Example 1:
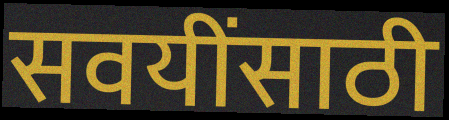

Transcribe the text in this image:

सवयींसाठी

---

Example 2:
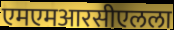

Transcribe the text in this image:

एमएमआरसीएलला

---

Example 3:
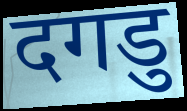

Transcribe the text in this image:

दगडु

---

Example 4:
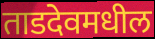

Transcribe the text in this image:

ताडदेवमधील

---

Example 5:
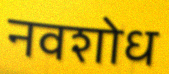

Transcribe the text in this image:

नवशोध